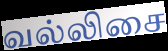
வல்லிசை